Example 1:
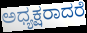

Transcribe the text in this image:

ಅಧ್ಯಕ್ಷರಾದರೆ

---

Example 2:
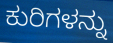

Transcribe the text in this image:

ಕುರಿಗಳನ್ನು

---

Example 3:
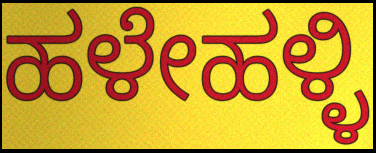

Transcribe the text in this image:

ಹಳೇಹಳ್ಳಿ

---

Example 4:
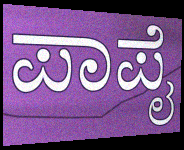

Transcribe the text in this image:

ಪಾಪೈ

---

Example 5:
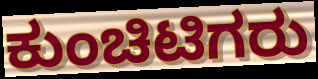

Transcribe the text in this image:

ಕುಂಚಿಟಿಗರು